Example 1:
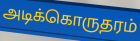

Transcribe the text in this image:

அடிக்கொருதரம்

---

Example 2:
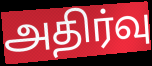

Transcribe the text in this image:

அதிர்வு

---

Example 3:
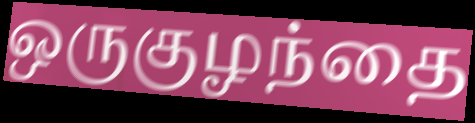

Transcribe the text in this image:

ஒருகுழந்தை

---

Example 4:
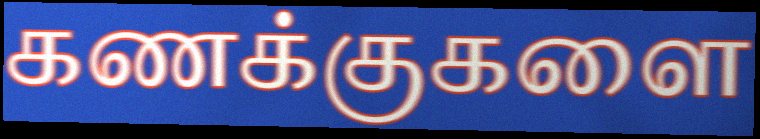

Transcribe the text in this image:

கணக்குகளை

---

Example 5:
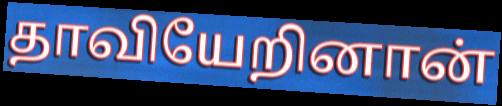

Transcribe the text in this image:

தாவியேறினான்